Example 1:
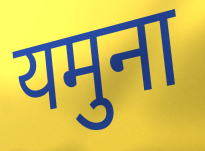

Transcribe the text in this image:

यमुना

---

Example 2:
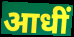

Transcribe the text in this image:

आधीं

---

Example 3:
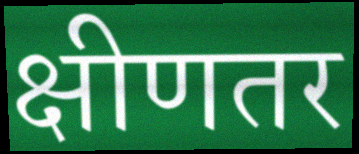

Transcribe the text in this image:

क्षीणतर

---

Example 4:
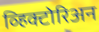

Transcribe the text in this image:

व्हिक्टोरिअन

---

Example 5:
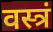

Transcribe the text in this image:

वस्त्रं